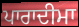
ਪਾਰਾਦੀਮਾ